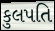
કુલપતિ